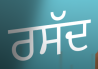
ਰਸੱਦ